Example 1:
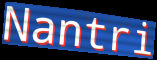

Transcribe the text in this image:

Nantri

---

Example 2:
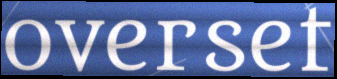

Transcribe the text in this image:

overset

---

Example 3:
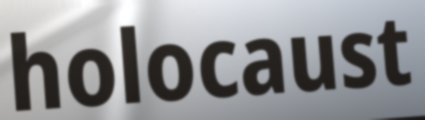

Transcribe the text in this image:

holocaust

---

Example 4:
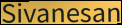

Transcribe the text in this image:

Sivanesan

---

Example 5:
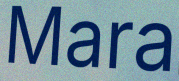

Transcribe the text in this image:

Mara